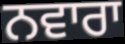
ਨਵਾਰਾ